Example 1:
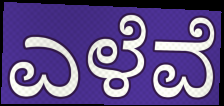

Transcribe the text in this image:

ಎಳೆವೆ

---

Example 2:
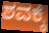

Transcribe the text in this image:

ಶವಕ್ಕೆ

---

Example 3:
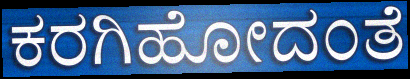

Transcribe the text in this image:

ಕರಗಿಹೋದಂತೆ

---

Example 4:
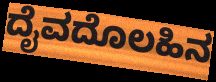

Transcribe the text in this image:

ದೈವದೊಲಹಿನ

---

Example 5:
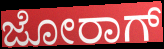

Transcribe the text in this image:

ಜೋರಾಗ್